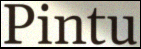
Pintu